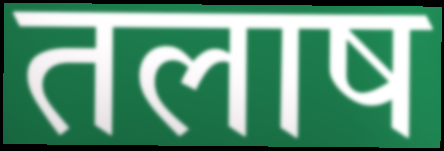
तलाष